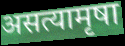
असत्यामृषा